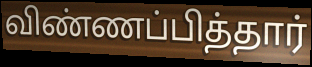
விண்ணப்பித்தார்